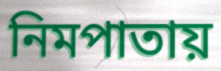
নিমপাতায়